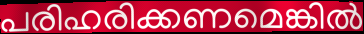
പരിഹരിക്കണമെങ്കിൽ